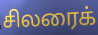
சிலரைக்